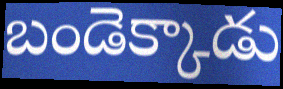
బండెక్కాడు